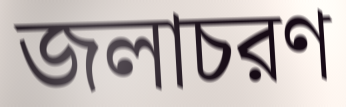
জলাচরণ